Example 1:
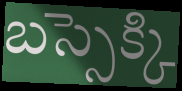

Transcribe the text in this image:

బస్సెక్కి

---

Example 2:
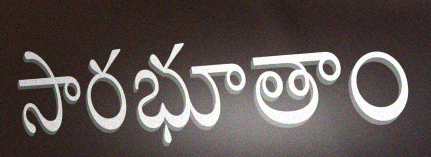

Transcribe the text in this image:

సారభూతాం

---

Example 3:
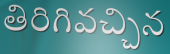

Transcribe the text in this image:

తిరిగివచ్చిన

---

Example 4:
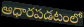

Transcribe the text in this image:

ఆధారపడటంలో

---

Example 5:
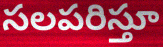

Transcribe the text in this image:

సలపరిస్తూ